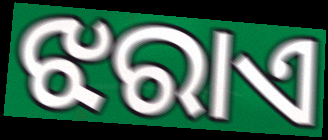
ଝରାଏ